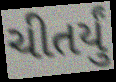
ચીતર્યું